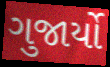
ગુજાર્યો